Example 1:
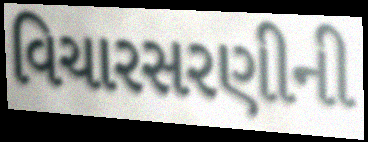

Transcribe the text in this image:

વિચારસરણીની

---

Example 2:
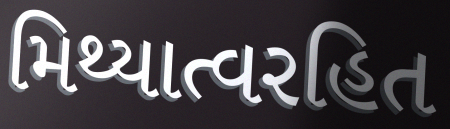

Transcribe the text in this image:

મિથ્યાત્વરહિત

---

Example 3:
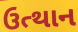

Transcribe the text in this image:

ઉત્થાન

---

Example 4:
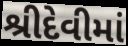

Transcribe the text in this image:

શ્રીદેવીમાં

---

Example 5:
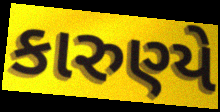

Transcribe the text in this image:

કારુણ્યે